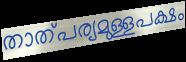
താത്പര്യമുള്ളപക്ഷം